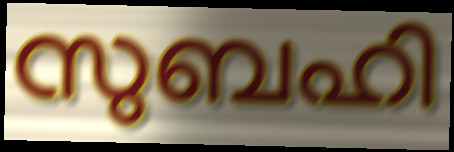
സുബഹി